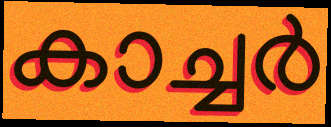
കാച്ചർ